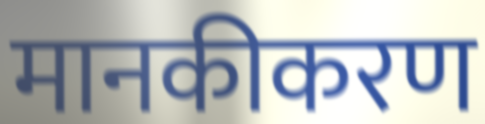
मानकीकरण